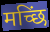
मच्छिं